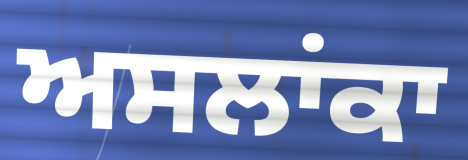
ਅਸਲਾਂਕਾ